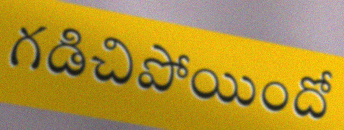
గడిచిపోయిందో